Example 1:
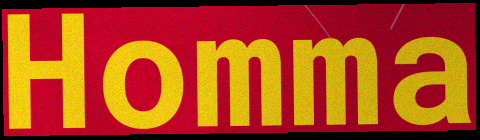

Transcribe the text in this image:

Homma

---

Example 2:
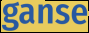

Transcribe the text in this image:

ganse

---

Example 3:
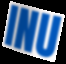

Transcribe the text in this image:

INU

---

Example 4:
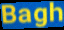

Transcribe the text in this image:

Bagh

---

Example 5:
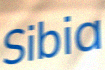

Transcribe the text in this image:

Sibia